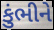
કુંભીને